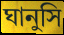
ঘানুসি